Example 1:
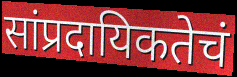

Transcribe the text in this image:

सांप्रदायिकतेचं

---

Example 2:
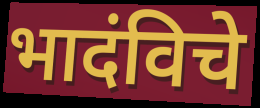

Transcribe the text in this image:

भादंविचे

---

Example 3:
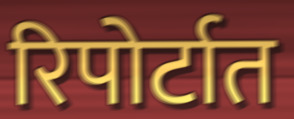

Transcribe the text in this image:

रिपोर्टात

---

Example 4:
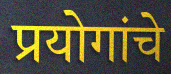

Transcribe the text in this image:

प्रयोगांचे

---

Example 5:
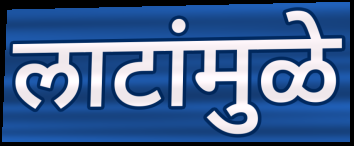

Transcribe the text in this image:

लाटांमुळे